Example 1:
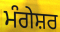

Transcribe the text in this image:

ਮੰਗੇਸ਼ਰ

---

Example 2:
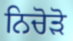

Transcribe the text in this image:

ਨਿਚੋੜੋ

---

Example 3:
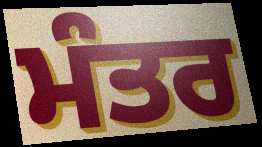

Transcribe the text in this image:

ਮੰਤਰ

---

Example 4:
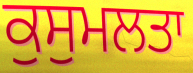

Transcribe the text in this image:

ਕੁਸੁਮਲਤਾ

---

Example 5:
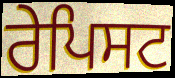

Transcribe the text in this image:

ਰੇਪਿਸਟ